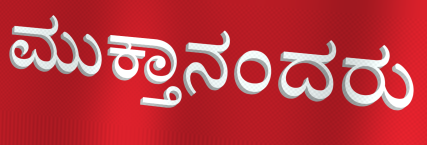
ಮುಕ್ತಾನಂದರು